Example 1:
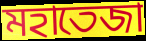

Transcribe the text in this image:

মহাতেজা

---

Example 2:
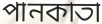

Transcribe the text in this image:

পানকাতা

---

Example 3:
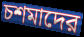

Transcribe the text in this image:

চশমাদের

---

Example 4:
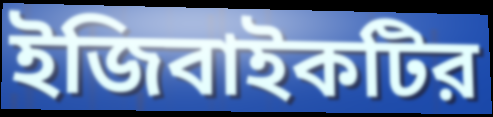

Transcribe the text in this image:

ইজিবাইকটির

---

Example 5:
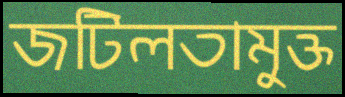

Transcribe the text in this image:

জটিলতামুক্ত